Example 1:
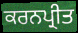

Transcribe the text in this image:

ਕਰਨਪ੍ਰੀਤ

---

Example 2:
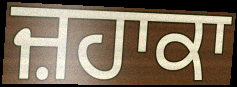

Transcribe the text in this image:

ਜ਼ਹਾਕਾ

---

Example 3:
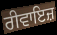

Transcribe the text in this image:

ਰੀਵਾਇਜ਼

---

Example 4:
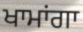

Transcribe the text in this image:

ਖਾਮਾਂਗਾ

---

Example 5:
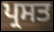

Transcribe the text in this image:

ਪ੍ਰਸਤ